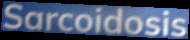
Sarcoidosis